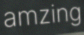
amzing